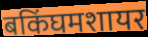
बकिंघमशायर